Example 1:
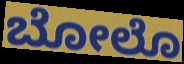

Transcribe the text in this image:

ಬೋಲೊ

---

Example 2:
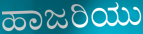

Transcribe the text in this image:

ಹಾಜರಿಯು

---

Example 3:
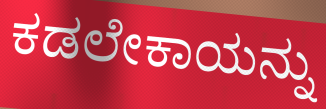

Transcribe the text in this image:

ಕಡಲೇಕಾಯನ್ನು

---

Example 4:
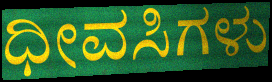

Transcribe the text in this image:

ಧೀವಸಿಗಳು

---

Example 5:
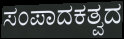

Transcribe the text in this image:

ಸಂಪಾದಕತ್ವದ